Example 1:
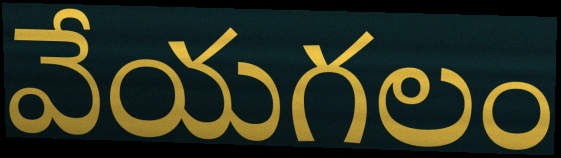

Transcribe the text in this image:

వేయగలం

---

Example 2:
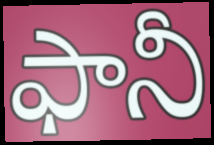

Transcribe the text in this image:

ఫానీ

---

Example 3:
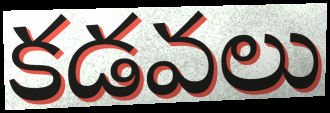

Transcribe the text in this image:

కడవలు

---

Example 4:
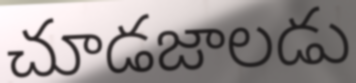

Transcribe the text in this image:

చూడజాలడు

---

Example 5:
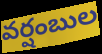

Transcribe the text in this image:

వర్షంబుల